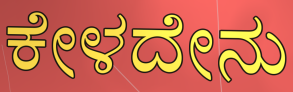
ಕೇಳದೇನು